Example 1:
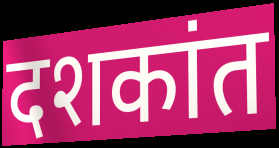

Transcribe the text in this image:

दशकांत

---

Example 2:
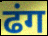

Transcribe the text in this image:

ढंग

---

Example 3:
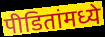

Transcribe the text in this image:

पीडितांमध्ये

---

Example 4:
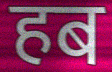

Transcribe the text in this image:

हब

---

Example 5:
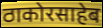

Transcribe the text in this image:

ठाकोरसाहेब